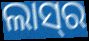
ଲାସ୍‍ର